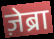
ज़ेब्रा